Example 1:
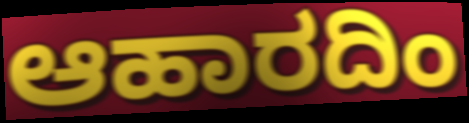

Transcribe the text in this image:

ಆಹಾರದಿಂ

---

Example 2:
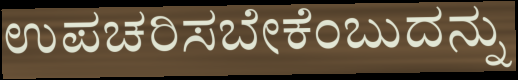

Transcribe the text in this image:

ಉಪಚರಿಸಬೇಕೆಂಬುದನ್ನು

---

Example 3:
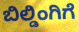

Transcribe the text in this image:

ಬಿಲ್ಡಿಂಗಿಗೆ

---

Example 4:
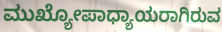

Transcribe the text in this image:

ಮುಖ್ಯೋಪಾಧ್ಯಾಯರಾಗಿರುವ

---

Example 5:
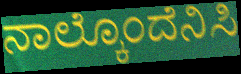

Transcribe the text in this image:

ನಾಲ್ಕೊಂದೆನಿಸಿ